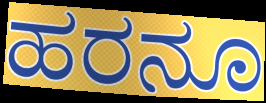
ಹರನೂ